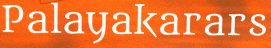
Palayakarars